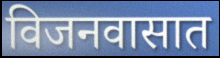
विजनवासात